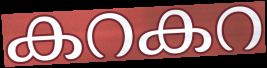
കറകറ